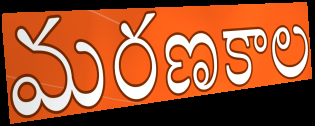
మరణకాల